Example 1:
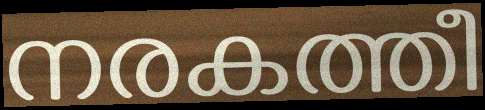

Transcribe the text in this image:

നരകത്തീ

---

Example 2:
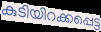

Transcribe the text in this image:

കുടിയിറക്കപ്പെട്ട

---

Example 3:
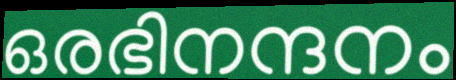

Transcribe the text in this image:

ഒരഭിനന്ദനം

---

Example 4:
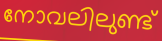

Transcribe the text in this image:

നോവലിലുണ്ട്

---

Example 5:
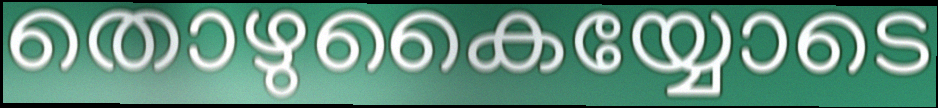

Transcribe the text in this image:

തൊഴുകൈയ്യോടെ